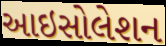
આઇસોલેશન